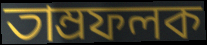
তাম্রফলক